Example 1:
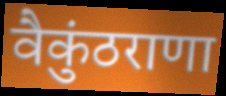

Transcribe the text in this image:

वैकुंठराणा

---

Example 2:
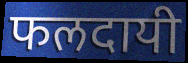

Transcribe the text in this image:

फलदायी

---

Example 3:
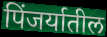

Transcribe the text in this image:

पिंजर्यातील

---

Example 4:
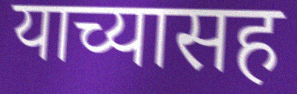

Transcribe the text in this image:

याच्यासह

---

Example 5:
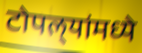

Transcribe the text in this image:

टोपल्यांमध्ये